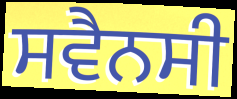
ਸਵੈਨਸੀ